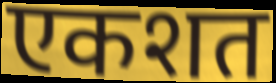
एकशत